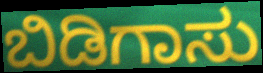
ಬಿಡಿಗಾಸು